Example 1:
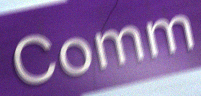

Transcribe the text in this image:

Comm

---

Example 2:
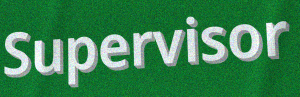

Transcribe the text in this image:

Supervisor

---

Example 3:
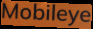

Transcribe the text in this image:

Mobileye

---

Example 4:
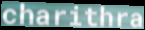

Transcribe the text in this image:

charithra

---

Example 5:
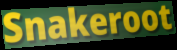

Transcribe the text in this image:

Snakeroot